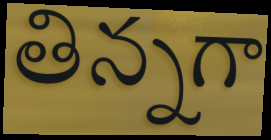
తిన్నగా